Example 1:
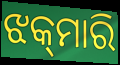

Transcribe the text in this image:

ଝକ୍‌ମାରି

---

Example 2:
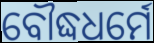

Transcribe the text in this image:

ବୌଦ୍ଧଧର୍ମେ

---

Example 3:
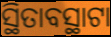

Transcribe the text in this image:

ସ୍ଥିତାବସ୍ଥାଟା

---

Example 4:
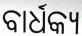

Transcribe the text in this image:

ବାର୍ଧକ୍ୟ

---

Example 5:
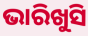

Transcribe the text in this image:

ଭାରିଖୁସି